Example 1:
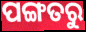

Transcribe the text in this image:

ପଙ୍ଗତରୁ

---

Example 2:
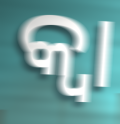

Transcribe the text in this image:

କ୍ଵା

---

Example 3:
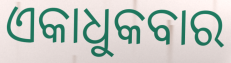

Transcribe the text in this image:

ଏକାଧୁକବାର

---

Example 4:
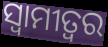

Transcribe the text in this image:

ସ୍ଵାମୀତ୍ୱର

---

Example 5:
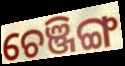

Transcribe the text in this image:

ଚେଞ୍ଜିଙ୍ଗ